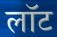
लॉट